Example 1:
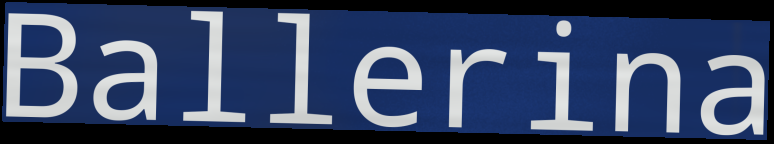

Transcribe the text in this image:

Ballerina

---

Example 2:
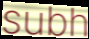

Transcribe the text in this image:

subh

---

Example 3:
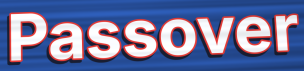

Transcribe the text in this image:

Passover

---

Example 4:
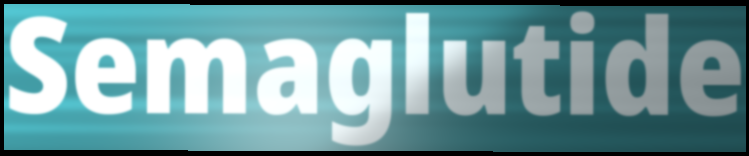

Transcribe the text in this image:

Semaglutide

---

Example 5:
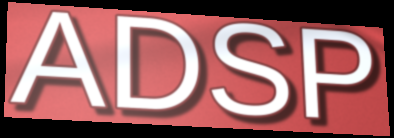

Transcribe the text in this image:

ADSP